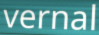
vernal